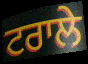
ਟਰਾਲੇ